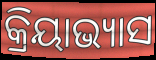
କ୍ରିୟାଭ୍ୟାସ